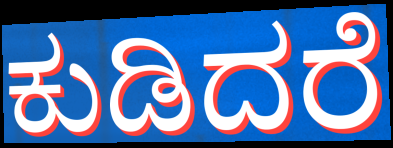
ಕುಡಿದರೆ